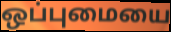
ஒப்புமையை